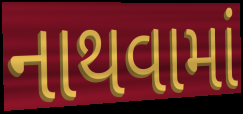
નાથવામાં